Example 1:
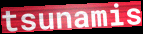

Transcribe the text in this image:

tsunamis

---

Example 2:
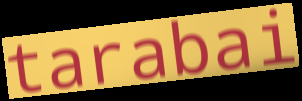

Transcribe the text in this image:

tarabai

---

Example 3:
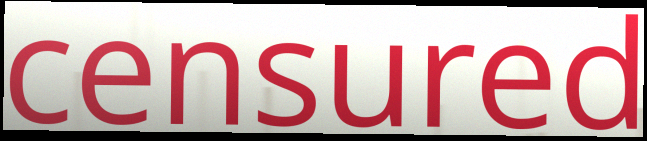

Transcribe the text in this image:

censured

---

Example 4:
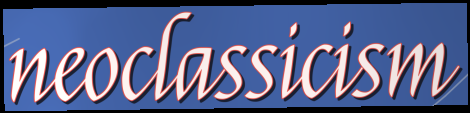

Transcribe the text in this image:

neoclassicism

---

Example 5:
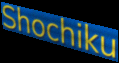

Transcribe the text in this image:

Shochiku